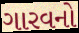
ગારવનો